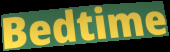
Bedtime